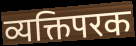
व्यक्तिपरक